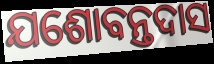
ଯଶୋବନ୍ତଦାସ